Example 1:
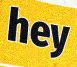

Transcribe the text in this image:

hey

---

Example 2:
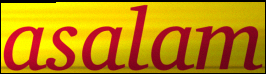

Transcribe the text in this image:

asalam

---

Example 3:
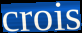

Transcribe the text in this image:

crois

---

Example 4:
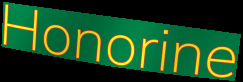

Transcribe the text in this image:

Honorine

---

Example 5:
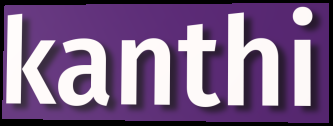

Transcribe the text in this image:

kanthi